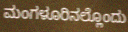
ಮಂಗಳೂರಿನಲ್ಲೊಂದು